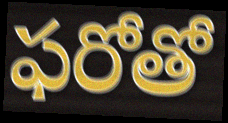
ఫరోతో